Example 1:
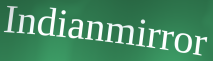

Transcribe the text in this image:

Indianmirror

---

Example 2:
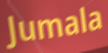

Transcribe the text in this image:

Jumala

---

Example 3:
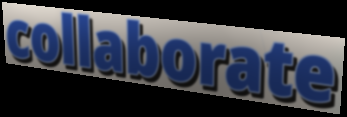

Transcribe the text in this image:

collaborate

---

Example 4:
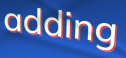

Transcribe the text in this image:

adding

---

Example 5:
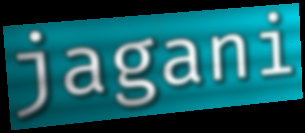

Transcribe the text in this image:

jagani